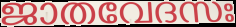
ജാതവേദസഃ